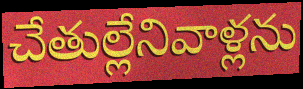
చేతుల్లేనివాళ్లను